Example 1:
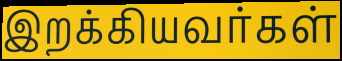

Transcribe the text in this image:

இறக்கியவர்கள்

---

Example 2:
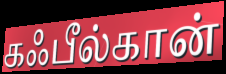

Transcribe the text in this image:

கஃபீல்கான்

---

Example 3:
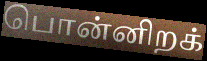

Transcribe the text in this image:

பொன்னிறக்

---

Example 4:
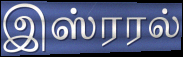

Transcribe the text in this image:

இஸ்ரரல்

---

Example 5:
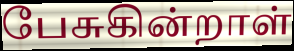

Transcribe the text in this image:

பேசுகின்றாள்